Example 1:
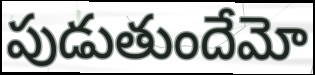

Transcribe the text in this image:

పుడుతుందేమో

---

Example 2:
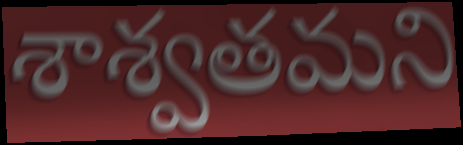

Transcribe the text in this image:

శాశ్వతమని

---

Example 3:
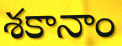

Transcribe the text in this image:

శకానాం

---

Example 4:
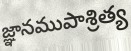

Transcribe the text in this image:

జ్ఞానముపాశ్రిత్య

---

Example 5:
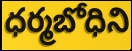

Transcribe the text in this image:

ధర్మబోధిని